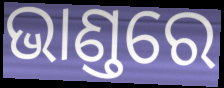
ଭାଣ୍ଡରେ